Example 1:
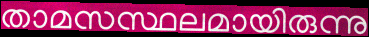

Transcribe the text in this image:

താമസസ്ഥലമായിരുന്നു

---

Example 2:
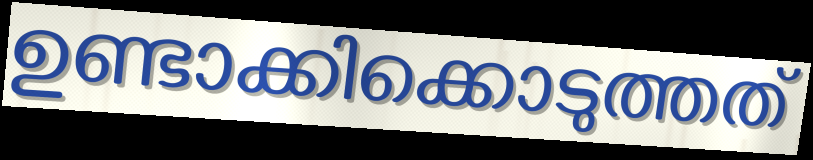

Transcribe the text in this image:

ഉണ്ടാക്കിക്കൊടുത്തത്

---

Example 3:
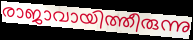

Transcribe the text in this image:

രാജാവായിത്തീരുന്നു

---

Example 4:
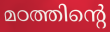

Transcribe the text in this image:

മഠത്തിന്റെ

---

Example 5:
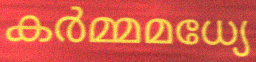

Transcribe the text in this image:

കർമ്മമധ്യേ